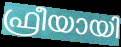
ഫ്രീയായി